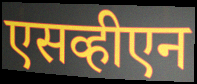
एसव्हीएन